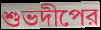
শুভদীপের